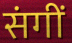
संगीं